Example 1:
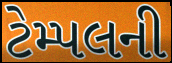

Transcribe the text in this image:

ટેમ્પલની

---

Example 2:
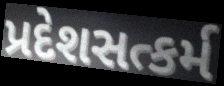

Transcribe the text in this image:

પ્રદેશસત્કર્મ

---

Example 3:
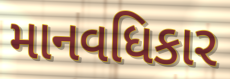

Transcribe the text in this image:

માનવધિકાર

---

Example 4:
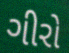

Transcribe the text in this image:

ગીરો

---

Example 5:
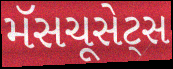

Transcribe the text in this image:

મૅસચૂસેટ્સ